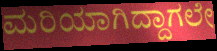
ಮರಿಯಾಗಿದ್ದಾಗಲೇ